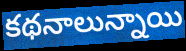
కథనాలున్నాయి